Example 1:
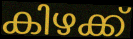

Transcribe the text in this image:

കിഴക്ക്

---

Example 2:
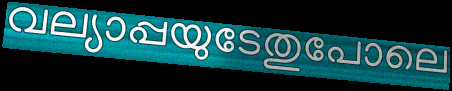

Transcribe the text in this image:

വല്യാപ്പയുടേതുപോലെ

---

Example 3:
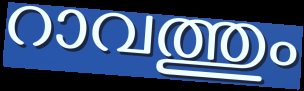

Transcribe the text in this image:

റാവത്തും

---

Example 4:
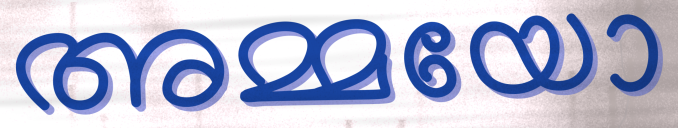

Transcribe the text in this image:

അമ്മയോ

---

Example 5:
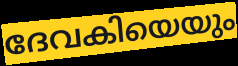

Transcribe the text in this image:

ദേവകിയെയും